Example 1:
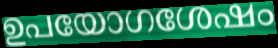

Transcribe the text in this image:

ഉപയോഗശേഷം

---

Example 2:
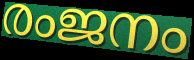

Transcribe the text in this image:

രംജനം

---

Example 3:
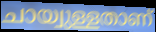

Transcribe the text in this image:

ചായ്വുള്ളതാണ്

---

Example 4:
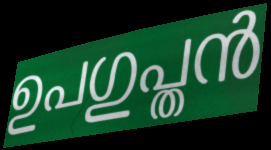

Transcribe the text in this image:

ഉപഗുപ്തൻ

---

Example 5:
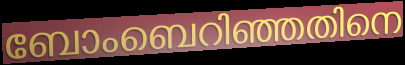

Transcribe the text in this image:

ബോംബെറിഞ്ഞതിനെ